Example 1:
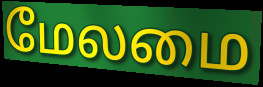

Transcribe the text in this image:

மேலமை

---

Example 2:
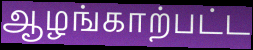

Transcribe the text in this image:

ஆழங்காற்பட்ட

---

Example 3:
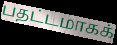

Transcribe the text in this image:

பதட்டமாகக்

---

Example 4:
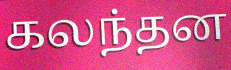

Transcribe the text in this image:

கலந்தன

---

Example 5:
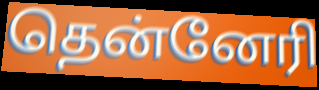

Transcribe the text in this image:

தென்னேரி